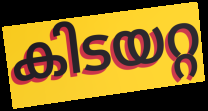
കിടയറ്റ